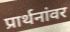
प्रार्थनांवर